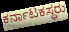
ಕರ್ನಾಟಕಸ್ಥರು